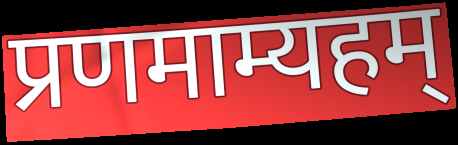
प्रणमाम्यहम्